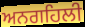
ਅਨਗਹਿਲੀ